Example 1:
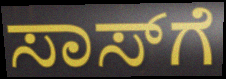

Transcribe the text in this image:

ಸಾಸ್‌ಗೆ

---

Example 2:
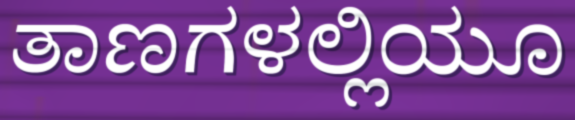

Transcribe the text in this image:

ತಾಣಗಳಲ್ಲಿಯೂ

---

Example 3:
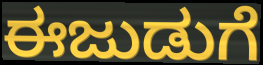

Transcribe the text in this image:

ಈಜುಡುಗೆ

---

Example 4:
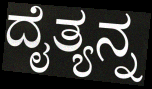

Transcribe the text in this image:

ದೈತ್ಯನ್ನ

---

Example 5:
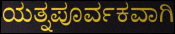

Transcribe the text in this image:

ಯತ್ನಪೂರ್ವಕವಾಗಿ